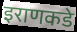
इराणकडे